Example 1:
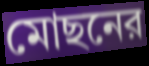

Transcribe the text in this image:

মোছনের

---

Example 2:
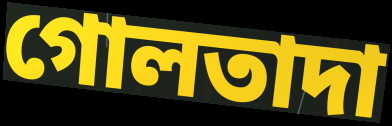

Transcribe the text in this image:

গোলতাদা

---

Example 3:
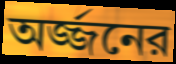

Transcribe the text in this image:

অর্জ্জনের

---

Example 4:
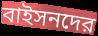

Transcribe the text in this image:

বাইসনদের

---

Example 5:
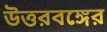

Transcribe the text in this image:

উত্তরবঙ্গের